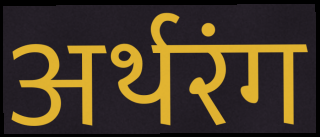
अर्थरंग